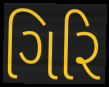
ગિરિ